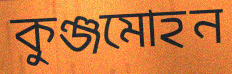
কুঞ্জমোহন